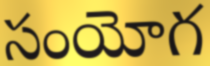
సంయోగ